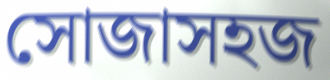
সোজাসহজ